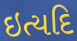
ઇત્યદિ